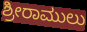
ಶ್ರೀರಾಮುಲು